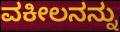
ವಕೀಲನನ್ನು